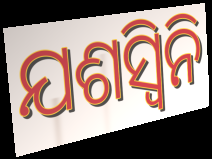
ଯଶସ୍ୱିନି